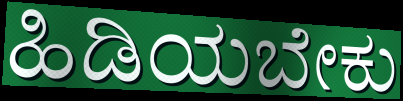
ಹಿಡಿಯಬೇಕು